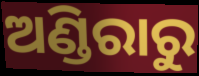
ଅଣ୍ଡିରାରୁ